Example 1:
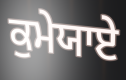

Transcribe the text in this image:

ਕੁਮੇਯਾਏ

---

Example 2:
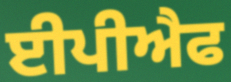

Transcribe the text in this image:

ਈਪੀਐਫ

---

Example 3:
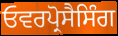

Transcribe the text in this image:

ਓਵਰਪ੍ਰੋਸੈਸਿੰਗ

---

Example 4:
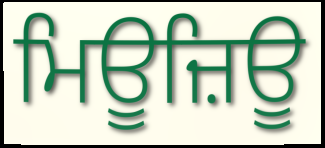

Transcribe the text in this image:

ਮਿਊਜ਼ਿਊ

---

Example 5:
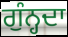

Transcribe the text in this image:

ਗੁੰਨ੍ਹਦਾ